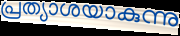
പ്രത്യാശയാകുന്നു